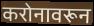
करोनावरून